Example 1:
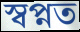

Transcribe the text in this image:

স্বপ্নত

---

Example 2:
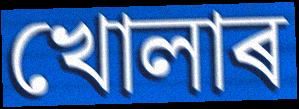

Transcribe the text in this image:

খোলাৰ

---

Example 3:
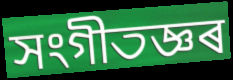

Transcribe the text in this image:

সংগীতজ্ঞৰ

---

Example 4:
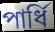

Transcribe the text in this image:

পাৰ্ধি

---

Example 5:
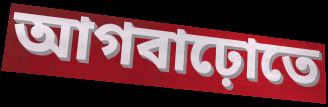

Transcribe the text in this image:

আগবাঢ়োতে